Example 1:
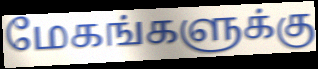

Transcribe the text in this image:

மேகங்களுக்கு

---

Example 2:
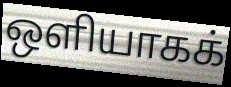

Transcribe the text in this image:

ஒளியாகக்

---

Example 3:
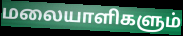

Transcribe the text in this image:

மலையாளிகளும்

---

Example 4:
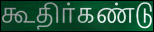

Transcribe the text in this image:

கூதிர்கண்டு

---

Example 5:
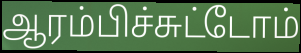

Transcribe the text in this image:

ஆரம்பிச்சுட்டோம்